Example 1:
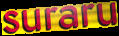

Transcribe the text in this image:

suraru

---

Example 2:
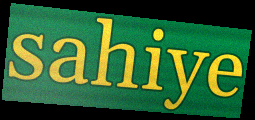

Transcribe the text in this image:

sahiye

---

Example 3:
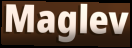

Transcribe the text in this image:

Maglev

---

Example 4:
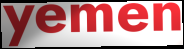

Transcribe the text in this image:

yemen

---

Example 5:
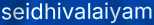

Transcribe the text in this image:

seidhivalaiyam